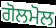
ਗੋਲਮੋਲ